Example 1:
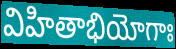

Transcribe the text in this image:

విహితాభియోగాః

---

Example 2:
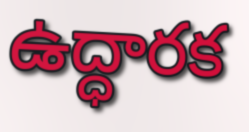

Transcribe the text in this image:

ఉద్ధారక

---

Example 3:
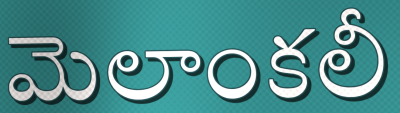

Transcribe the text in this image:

మెలాంకలీ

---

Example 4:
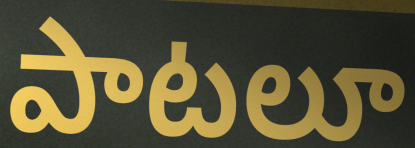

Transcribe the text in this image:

పాటలూ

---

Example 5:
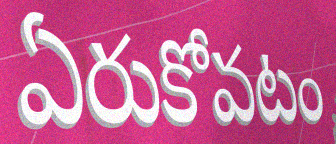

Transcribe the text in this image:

ఏరుకోవటం